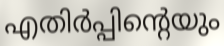
എതിർപ്പിന്റെയും